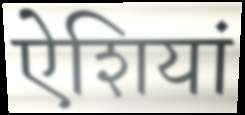
ऐशियां